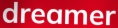
dreamer